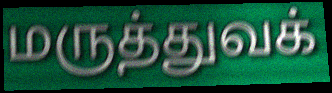
மருத்துவக்